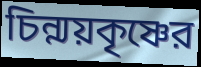
চিন্ময়কৃষ্ণের